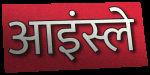
आइंस्ले